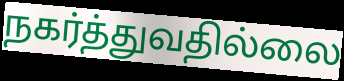
நகர்த்துவதில்லை